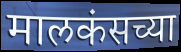
मालकंसच्या